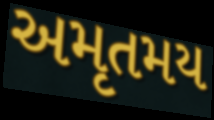
અમૃતમય